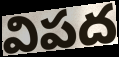
విపద